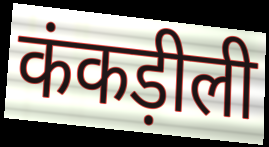
कंकड़ीली